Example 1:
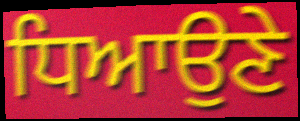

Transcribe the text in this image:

ਧਿਆਉਣੇ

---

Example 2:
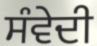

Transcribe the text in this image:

ਸੰਵੇਦੀ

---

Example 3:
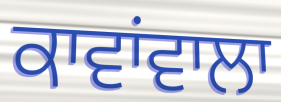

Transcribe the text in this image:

ਕਾਵਾਂਵਾਲਾ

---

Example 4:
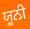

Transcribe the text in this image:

ਯੂਨੀ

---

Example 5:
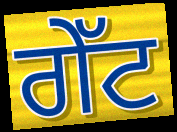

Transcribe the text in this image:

ਗੇੱਟ